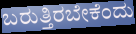
ಬರುತ್ತಿರಬೇಕೆಂದು